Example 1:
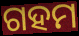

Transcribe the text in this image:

ଗହମ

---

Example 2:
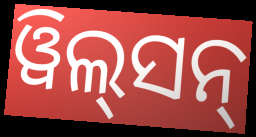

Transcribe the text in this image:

ୱିଲ୍‌ସନ୍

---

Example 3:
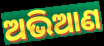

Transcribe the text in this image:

ଅଭିଆଣ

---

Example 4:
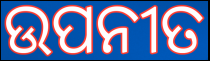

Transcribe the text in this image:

ଉପନୀତ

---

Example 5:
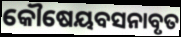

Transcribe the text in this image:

କୌଷେୟବସନାବୃତ